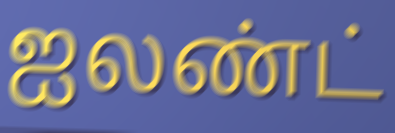
ஐலண்ட்